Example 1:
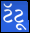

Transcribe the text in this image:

ટૅટૂ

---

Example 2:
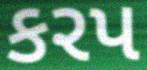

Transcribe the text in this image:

કરપ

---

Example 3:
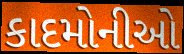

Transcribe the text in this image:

કાદમોનીઓ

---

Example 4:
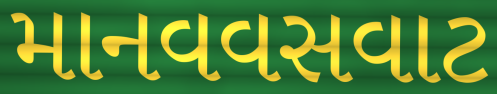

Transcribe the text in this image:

માનવવસવાટ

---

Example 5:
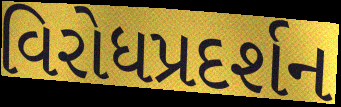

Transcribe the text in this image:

વિરોધપ્રદર્શન